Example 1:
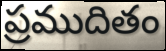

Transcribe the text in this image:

ప్రముదితం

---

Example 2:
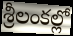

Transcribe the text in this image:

శ్రీలంకల్లో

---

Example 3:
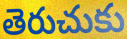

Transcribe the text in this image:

తెరుచుకు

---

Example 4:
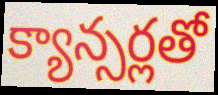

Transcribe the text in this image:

క్యాన్సర్లతో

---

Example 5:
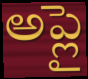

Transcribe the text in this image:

అప్లై